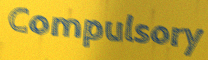
Compulsory